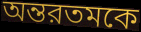
অন্তরতমকে